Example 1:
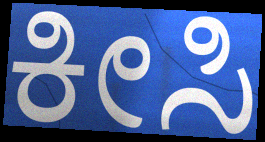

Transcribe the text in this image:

ಕೀಸಿ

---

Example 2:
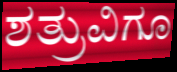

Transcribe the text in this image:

ಶತ್ರುವಿಗೂ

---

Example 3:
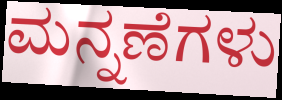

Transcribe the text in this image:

ಮನ್ನಣೆಗಳು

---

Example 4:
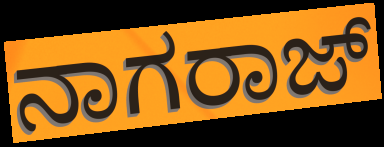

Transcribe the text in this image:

ನಾಗರಾಜ್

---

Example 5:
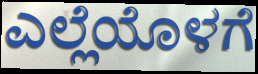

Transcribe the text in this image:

ಎಲ್ಲೆಯೊಳಗೆ